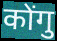
कोंगु